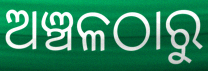
ଅଞ୍ଚଳଠାରୁ